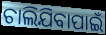
ଚାଲିଯିବାପାଇଁ